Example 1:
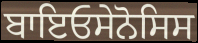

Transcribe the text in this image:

ਬਾਇਓਸੇਨੋਸਿਸ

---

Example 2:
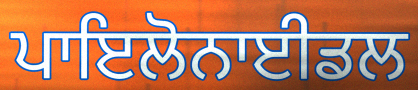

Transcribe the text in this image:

ਪਾਇਲੋਨਾਈਡਲ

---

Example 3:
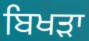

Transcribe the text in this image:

ਬਿਖੜਾ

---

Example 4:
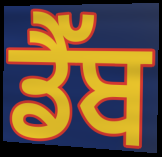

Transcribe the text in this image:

ਡੈੱਬ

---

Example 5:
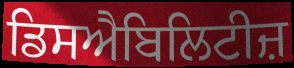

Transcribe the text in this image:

ਡਿਸਐਬਿਲਿਟੀਜ਼